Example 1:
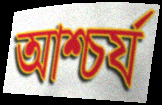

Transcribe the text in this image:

আশ্চৰ্য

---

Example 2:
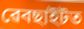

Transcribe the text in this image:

ৱেবছাইটত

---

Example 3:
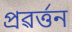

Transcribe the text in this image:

প্ৰৱৰ্ত্তন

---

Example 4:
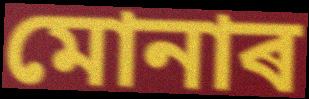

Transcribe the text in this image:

মোনাৰ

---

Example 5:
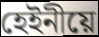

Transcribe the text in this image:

হেইনীয়ে